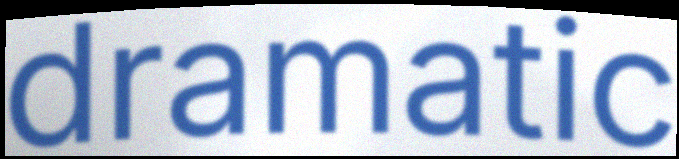
dramatic